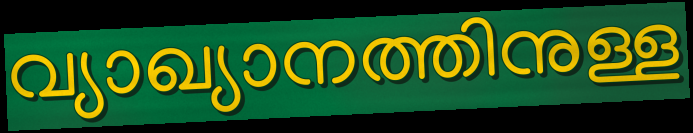
വ്യാഖ്യാനത്തിനുള്ള